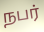
நபர்